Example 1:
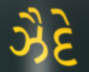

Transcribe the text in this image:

ઝૈદે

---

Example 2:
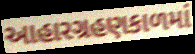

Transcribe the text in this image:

આહારગ્રહણકાળમાં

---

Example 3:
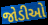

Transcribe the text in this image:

જોડીઓ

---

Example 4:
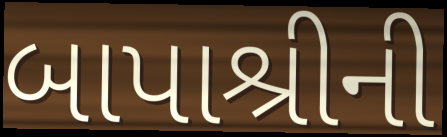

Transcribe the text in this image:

બાપાશ્રીની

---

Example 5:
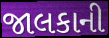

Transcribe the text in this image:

જાલકાની